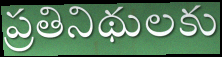
ప్రతినిథులకు